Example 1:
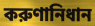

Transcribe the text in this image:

করুণানিধান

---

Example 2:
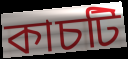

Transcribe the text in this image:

কাচটি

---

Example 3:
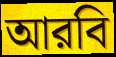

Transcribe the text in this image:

আরবি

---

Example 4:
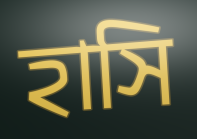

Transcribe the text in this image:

হাসি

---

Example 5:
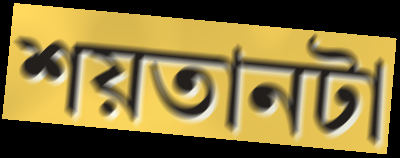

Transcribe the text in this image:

শয়তানটা